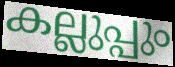
കല്ലുപ്പും